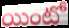
యింటో